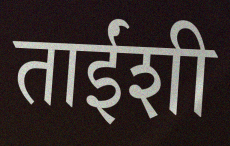
ताईंशी